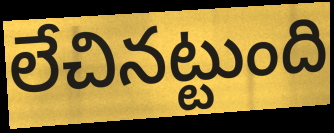
లేచినట్టుంది